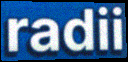
radii